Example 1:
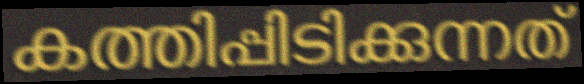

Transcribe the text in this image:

കത്തിപ്പിടിക്കുന്നത്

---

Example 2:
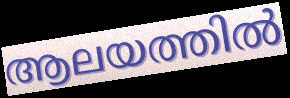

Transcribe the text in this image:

ആലയത്തിൽ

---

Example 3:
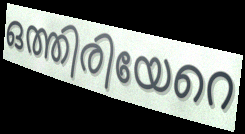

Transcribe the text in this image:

ഒത്തിരിയേറെ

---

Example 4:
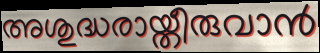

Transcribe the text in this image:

അശുദ്ധരായ്തീരുവാൻ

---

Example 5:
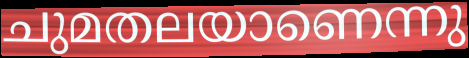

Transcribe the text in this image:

ചുമതലയാണെന്നു